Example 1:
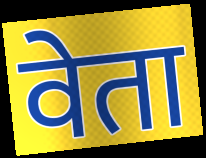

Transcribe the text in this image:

वेता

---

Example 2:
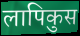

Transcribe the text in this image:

लापिकुस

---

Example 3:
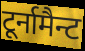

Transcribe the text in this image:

टूर्नामैन्ट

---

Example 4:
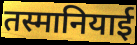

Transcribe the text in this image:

तस्मानियाई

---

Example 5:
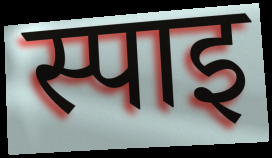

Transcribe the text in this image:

स्पाइ